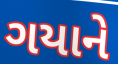
ગયાને